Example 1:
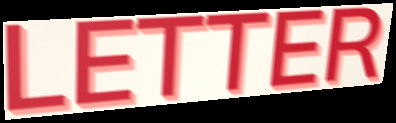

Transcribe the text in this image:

LETTER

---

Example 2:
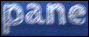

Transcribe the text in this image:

pane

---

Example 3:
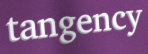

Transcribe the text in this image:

tangency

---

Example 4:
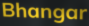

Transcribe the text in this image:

Bhangar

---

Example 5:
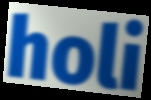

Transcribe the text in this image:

holi